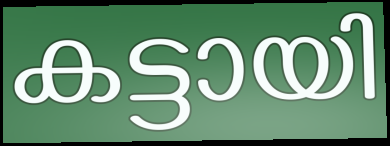
കട്ടായി